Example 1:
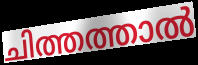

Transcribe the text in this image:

ചിത്തത്താൽ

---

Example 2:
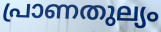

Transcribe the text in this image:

പ്രാണതുല്യം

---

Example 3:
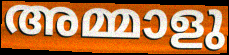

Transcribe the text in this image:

അമ്മാളു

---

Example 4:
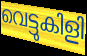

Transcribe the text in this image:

വെട്ടുകിളി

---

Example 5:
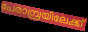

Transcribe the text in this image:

പേരാമ്പ്രയിലേക്ക്